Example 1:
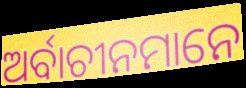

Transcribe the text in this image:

ଅର୍ବାଚୀନମାନେ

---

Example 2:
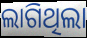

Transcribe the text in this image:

ଲାଗିଥିଲା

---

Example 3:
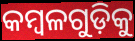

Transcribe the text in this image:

କମ୍ବଳଗୁଡ଼ିକୁ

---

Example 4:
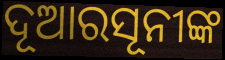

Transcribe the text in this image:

ଦୂଆରସୂନୀଙ୍କ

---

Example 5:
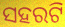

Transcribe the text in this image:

ସହରଟି